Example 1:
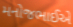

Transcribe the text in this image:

મનોજભાઈએ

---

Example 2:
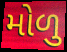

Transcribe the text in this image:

મોળુ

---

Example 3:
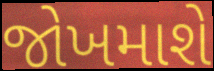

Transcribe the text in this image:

જોખમાશે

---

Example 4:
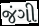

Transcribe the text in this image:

જંગી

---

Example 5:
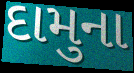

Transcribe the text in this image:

દામુના